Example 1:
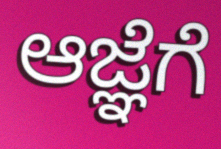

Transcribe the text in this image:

ಆಜ್ಞೆಗೆ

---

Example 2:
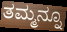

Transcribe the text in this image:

ತಮ್ಮನ್ನೂ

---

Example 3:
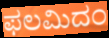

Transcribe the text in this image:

ಫಲಮಿದಂ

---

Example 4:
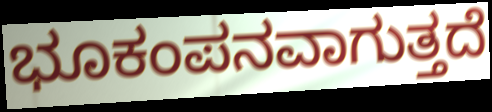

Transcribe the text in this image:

ಭೂಕಂಪನವಾಗುತ್ತದೆ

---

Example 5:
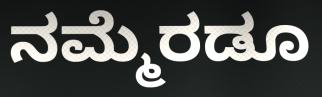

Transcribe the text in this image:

ನಮ್ಮೆರಡೂ